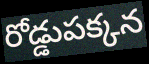
రోడ్డుపక్కన